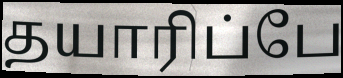
தயாரிப்பே